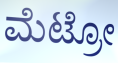
ಮೆಟ್ರೋ